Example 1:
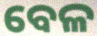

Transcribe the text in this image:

ବେଳ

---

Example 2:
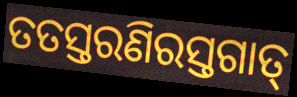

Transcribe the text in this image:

ତତସ୍ତରଣିରସ୍ତଗାତ୍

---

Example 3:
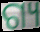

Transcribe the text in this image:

ଗ୍ଯ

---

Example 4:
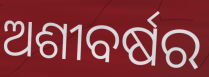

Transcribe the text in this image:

ଅଶୀବର୍ଷର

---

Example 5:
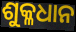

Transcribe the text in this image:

ଶୁକ୍ଳଧାନ